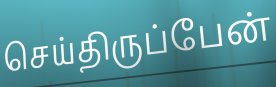
செய்திருப்பேன்